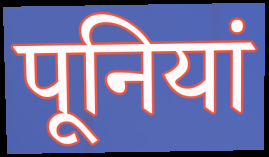
पूनियां